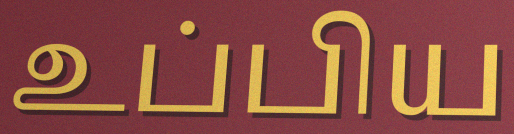
உப்பிய